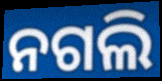
ନଗଲି